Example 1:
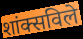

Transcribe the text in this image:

शांक्सविले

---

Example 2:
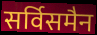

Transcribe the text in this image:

सर्विसमैन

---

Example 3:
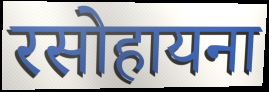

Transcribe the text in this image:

रसोहायना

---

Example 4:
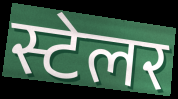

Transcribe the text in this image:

स्टेलर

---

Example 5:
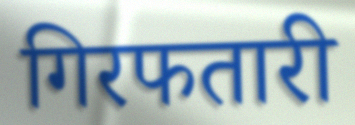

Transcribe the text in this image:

गिरफतारी